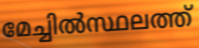
മേച്ചിൽസ്ഥലത്ത്